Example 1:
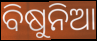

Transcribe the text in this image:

ବିଷୁନିଆ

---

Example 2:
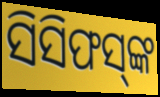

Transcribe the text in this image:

ସିସିଫସ୍‌ଙ୍କ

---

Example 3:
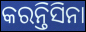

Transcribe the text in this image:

କରନ୍ତିସିନା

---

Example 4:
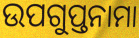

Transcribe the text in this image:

ଉପଗୁପ୍ତନାମା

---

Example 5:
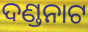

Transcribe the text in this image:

ଦଣ୍ଡନାଟ